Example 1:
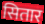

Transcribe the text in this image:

सितार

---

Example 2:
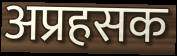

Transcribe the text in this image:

अप्रहसक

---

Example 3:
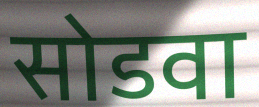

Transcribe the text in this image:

सोडवा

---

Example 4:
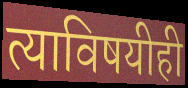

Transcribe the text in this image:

त्याविषयीही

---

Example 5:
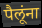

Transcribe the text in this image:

पैलूंना